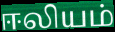
ஈலியம்